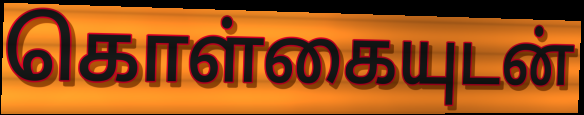
கொள்கையுடன்